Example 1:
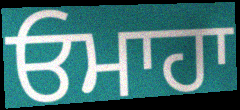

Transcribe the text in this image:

ਓਮਾਹਾ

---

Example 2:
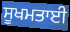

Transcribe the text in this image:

ਸੂਖਮਤਾਈ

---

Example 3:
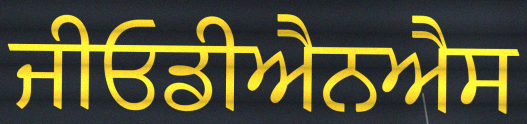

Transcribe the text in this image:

ਜੀਓਡੀਐਨਐਸ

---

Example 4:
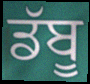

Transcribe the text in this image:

ਡੱਬੂ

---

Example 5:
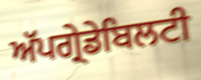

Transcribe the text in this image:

ਅੱਪਗ੍ਰੇਡੇਬਿਲਟੀ